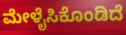
ಮೇಳೈಸಿಕೊಂಡಿದೆ